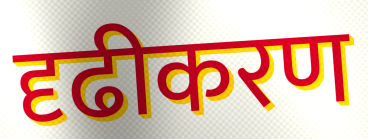
दृढीकरण